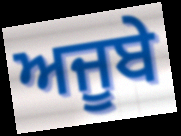
ਅਜੂਬੇ